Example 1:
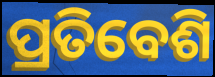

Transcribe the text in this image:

ପ୍ରତିବେଶି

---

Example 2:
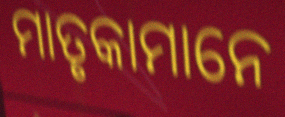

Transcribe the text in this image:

ମାତୃକାମାନେ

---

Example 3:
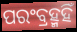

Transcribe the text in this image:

ପରଂବ୍ରହ୍ମହିଁ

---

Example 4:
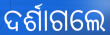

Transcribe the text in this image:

ଦର୍ଶାଗଲେ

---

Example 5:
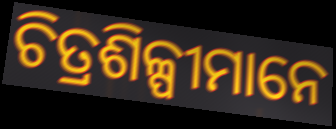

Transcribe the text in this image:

ଚିତ୍ରଶିଳ୍ପୀମାନେ